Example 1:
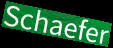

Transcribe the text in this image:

Schaefer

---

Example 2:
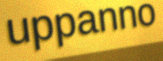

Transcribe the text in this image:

uppanno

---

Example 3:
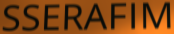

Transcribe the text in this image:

SSERAFIM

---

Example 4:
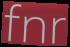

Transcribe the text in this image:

fnr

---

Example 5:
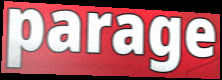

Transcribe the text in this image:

parage